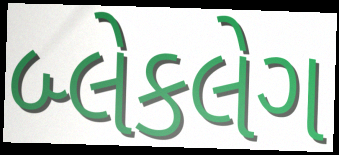
બ્લેકલેગ